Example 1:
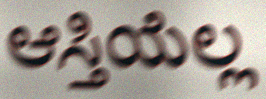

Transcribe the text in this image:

ಆಸ್ತಿಯೆಲ್ಲ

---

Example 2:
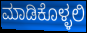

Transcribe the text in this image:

ಮಾಡಿಕೊಳ್ಳಲಿ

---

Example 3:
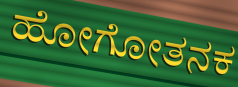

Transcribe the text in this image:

ಹೋಗೋತನಕ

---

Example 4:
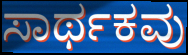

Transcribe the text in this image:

ಸಾರ್ಥಕವು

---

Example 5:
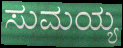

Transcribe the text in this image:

ಸುಮಯ್ಯ